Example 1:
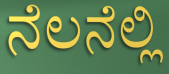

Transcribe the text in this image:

ನೆಲನೆಲ್ಲಿ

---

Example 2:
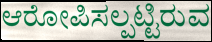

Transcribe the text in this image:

ಆರೋಪಿಸಲ್ಪಟ್ಟಿರುವ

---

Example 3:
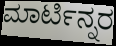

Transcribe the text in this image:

ಮಾರ್ಟಿನ್ನರ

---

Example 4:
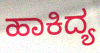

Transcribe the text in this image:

ಹಾಕಿದ್ಯ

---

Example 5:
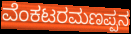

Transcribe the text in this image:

ವೆಂಕಟರಮಣಪ್ಪನ